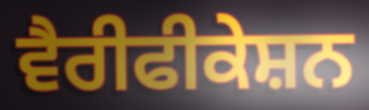
ਵੈਰੀਫੀਕੇਸ਼ਨ